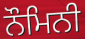
ਨੌਮਿਨੀ